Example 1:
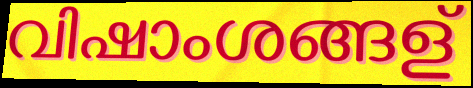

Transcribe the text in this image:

വിഷാംശങ്ങള്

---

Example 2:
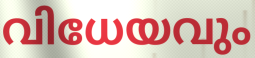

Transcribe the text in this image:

വിധേയവും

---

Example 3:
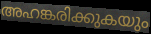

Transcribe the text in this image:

അഹങ്കരിക്കുകയും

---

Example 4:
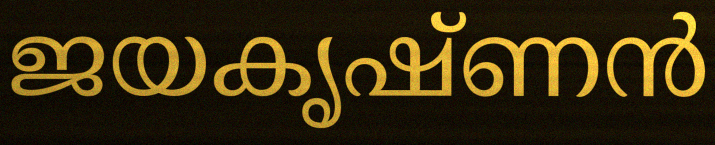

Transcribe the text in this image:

ജയകൃഷ്ണൻ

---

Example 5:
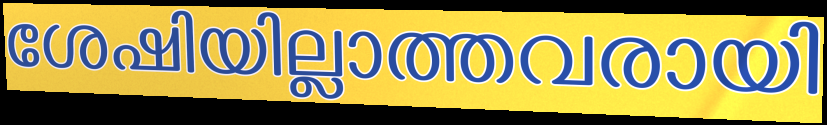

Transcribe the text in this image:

ശേഷിയില്ലാത്തവരായി